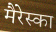
मैरेस्का